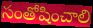
సంతోషించాలి